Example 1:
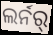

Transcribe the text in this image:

ଲର୍ନର୍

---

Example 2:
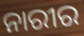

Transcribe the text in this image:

ନାରୀର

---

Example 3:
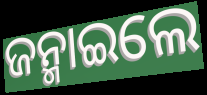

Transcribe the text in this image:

ଜନ୍ମାଇଲେ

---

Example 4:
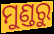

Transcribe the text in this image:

ମୁଣ୍ଡରୁ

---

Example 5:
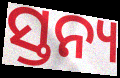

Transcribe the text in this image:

ସ୍ତନ୍ୟ